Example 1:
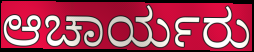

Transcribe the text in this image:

ಆಚಾರ್ಯರು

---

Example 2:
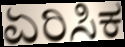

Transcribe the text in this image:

ಏರಿಸಿಕ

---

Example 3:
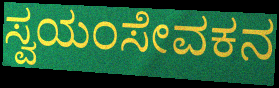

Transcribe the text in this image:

ಸ್ವಯಂಸೇವಕನ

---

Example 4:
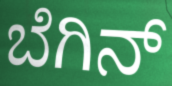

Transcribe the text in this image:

ಬೆಗಿನ್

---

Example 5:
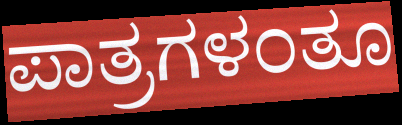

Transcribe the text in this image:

ಪಾತ್ರಗಳಂತೂ